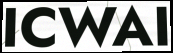
ICWAI